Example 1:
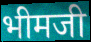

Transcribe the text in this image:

भीमजी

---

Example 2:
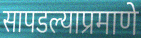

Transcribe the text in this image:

सापडल्याप्रमाणे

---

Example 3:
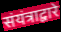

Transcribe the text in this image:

संयंत्राद्वारे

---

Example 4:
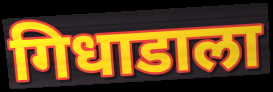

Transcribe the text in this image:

गिधाडाला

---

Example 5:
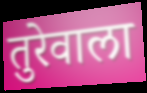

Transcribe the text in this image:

तुरेवाला